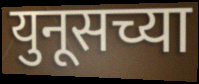
युनूसच्या